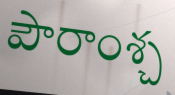
పౌరాంశ్చ